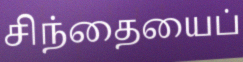
சிந்தையைப்